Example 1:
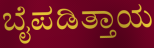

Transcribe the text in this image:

ಬೈಪಡಿತ್ತಾಯ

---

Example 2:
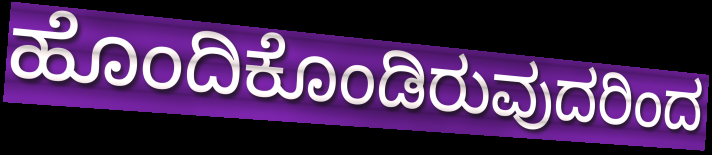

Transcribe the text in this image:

ಹೊಂದಿಕೊಂಡಿರುವುದರಿಂದ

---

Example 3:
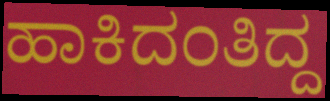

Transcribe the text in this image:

ಹಾಕಿದಂತಿದ್ದ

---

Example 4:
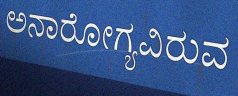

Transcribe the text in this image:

ಅನಾರೋಗ್ಯವಿರುವ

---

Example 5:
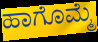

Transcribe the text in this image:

ಹಾಗೊಮ್ಮೆ